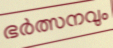
ഭർത്സനവും